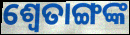
ଶ୍ବେତାଙ୍ଗଙ୍କ